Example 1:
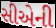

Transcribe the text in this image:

સીએની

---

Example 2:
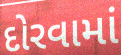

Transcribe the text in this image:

દોરવામાં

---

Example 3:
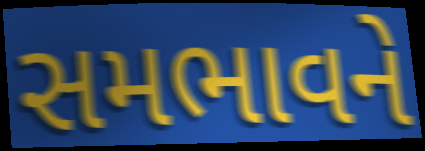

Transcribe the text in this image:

સમભાવને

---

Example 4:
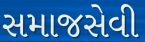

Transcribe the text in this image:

સમાજસેવી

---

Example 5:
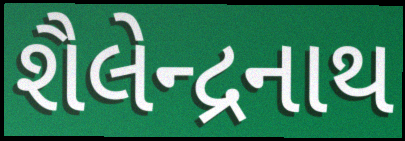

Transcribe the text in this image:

શૈલેન્દ્રનાથ